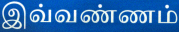
இவ்வண்ணம்